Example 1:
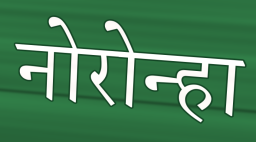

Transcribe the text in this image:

नोरोन्हा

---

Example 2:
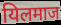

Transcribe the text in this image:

यिलमाज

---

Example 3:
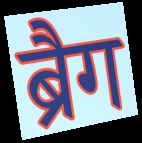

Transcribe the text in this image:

ब्रैग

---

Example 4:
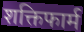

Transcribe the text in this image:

शक्तिफार्म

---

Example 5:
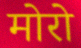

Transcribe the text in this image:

मोरो